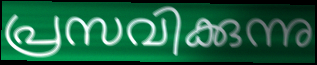
പ്രസവിക്കുന്നു